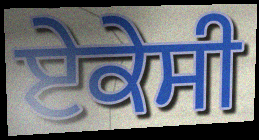
ਏਕੇਸੀ